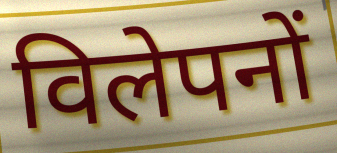
विलेपनों